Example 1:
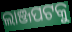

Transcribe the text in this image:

ଲାଞ୍ଜପଟକୁ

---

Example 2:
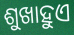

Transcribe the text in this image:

ଶୁଖାହୁଏ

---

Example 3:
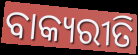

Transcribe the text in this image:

ବାକ୍ୟରୀତି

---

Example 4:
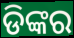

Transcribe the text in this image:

ଡିଙ୍କର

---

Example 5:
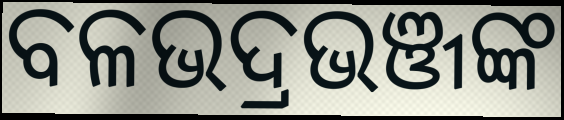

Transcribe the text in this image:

ବଳଭଦ୍ରଭଞ୍ଜଙ୍କ